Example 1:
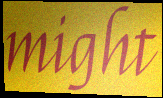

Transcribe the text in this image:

might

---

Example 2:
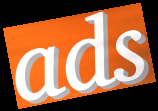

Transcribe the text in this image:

ads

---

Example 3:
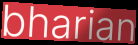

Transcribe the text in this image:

bharian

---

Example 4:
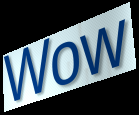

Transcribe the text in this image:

Wow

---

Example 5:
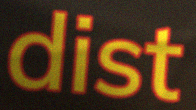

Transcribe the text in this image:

dist